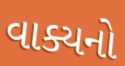
વાક્યનો